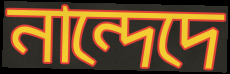
নান্দেদে